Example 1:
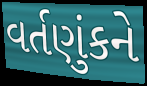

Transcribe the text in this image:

વર્તણુંકને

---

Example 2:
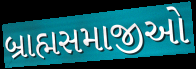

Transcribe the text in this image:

બ્રાહ્મસમાજીઓ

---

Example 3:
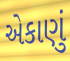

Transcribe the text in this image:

એકાણું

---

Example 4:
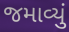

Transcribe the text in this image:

જમાવ્યું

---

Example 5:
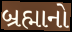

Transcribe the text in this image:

બ્રહ્માનો